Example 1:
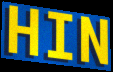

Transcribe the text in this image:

HIN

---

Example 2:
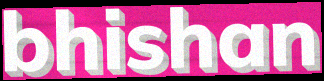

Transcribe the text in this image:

bhishan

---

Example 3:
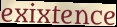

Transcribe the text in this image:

exixtence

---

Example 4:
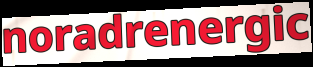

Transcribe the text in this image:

noradrenergic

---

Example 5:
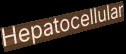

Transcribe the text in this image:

Hepatocellular